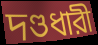
দণ্ডধারী